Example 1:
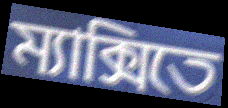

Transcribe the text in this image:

ম্যাক্সিতে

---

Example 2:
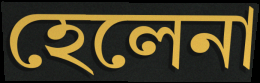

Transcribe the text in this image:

হেলেনা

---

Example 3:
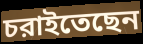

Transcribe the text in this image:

চরাইতেছেন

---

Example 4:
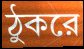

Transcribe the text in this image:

ঠুকরে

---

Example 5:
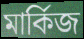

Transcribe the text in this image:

মার্কিজ